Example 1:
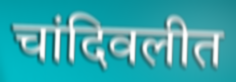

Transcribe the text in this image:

चांदिवलीत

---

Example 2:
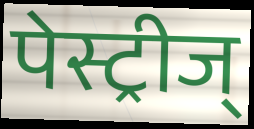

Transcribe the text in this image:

पेस्ट्रीज्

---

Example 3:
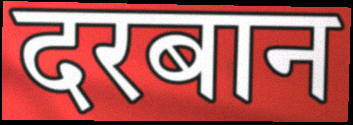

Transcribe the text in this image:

दरबान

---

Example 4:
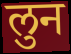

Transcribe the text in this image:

लुन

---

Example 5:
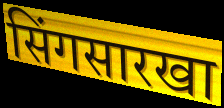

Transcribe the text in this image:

सिंगसारखा